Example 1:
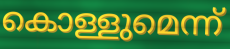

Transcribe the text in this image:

കൊള്ളുമെന്ന്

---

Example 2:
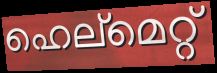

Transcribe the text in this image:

ഹെല്മെറ്റ്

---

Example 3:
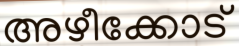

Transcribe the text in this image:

അഴീക്കോട്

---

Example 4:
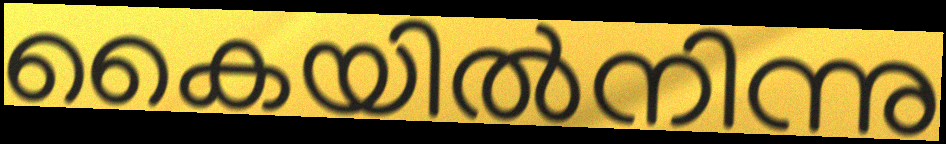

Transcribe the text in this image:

കൈയിൽനിന്നു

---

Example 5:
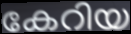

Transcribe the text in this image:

കേറിയ